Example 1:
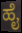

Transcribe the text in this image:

ಹೈ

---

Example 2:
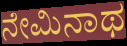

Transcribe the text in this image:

ನೇಮಿನಾಥ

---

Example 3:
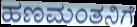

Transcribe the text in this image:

ಹಣಮಂತನಿಗೆ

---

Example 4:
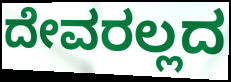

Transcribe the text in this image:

ದೇವರಲ್ಲದ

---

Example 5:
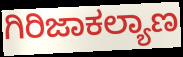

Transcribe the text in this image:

ಗಿರಿಜಾಕಲ್ಯಾಣ